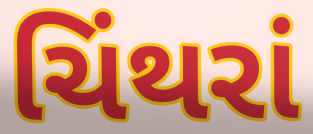
ચિંથરાં